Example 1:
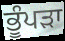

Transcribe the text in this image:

ਭੂੰਪੜਾ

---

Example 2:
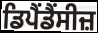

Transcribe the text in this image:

ਡਿਪੈਂਡੈਂਸੀਜ਼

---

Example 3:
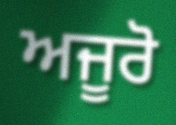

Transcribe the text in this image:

ਅਜੂਰੋ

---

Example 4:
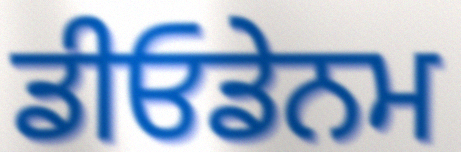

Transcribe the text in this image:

ਡੀਓਡੇਨਮ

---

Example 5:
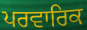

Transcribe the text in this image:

ਪਰਵਾਰਿਕ